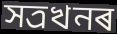
সত্ৰখনৰ